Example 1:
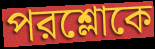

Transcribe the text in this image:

পরশ্লোকে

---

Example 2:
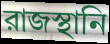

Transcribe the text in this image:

রাজস্থানি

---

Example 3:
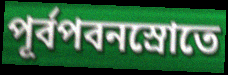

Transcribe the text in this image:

পূর্বপবনস্রোতে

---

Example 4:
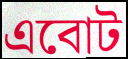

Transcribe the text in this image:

এবোট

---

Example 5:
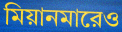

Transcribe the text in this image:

মিয়ানমারেও